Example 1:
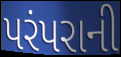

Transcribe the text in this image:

પરંપરાની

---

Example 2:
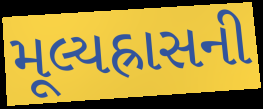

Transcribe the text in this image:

મૂલ્યહ્રાસની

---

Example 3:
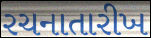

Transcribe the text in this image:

રચનાતારીખ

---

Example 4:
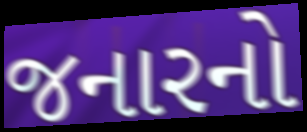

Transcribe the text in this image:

જનારનો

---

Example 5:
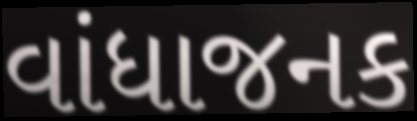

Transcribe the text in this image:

વાંધાજનક